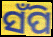
ସଁପି